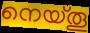
നെയ്തൂ